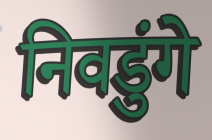
निवडुंगे